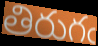
తిరుగఁ